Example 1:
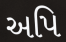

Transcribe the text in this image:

અપિ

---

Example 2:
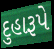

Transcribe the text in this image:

દુહારૂપે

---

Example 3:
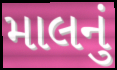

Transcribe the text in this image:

માલનું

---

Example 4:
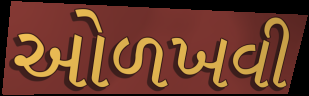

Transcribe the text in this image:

ઓળખવી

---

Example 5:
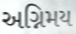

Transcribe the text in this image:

અગ્નિમય